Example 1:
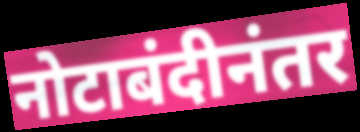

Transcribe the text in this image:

नोटाबंदीनंतर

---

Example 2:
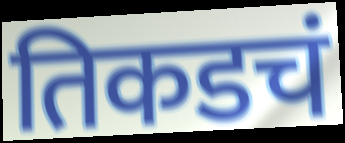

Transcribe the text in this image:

तिकडचं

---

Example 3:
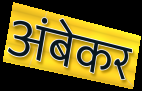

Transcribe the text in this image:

अंबेकर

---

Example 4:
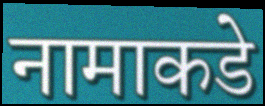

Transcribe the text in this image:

नामाकडे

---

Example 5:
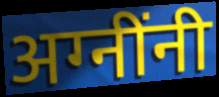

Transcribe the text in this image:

अग्नींनी